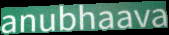
anubhaava